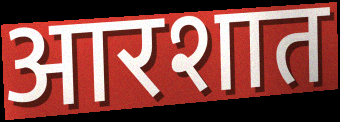
आरशात